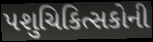
પશુચિકિત્સકોની